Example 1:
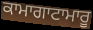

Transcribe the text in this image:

ਕਾਮਾਗਾਟਾਮਾਰੂ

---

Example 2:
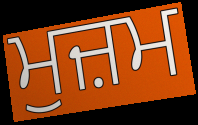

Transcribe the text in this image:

ਮੁਜ਼ਮ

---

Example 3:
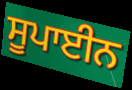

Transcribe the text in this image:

ਸੂਪਾਈਨ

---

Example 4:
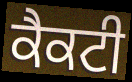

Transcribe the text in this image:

ਕੈਕਟੀ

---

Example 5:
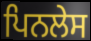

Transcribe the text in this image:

ਪਿਨਲੇਸ